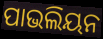
ପାଭଲିୟନ